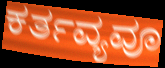
ಕರ್ತವ್ಯವೂ